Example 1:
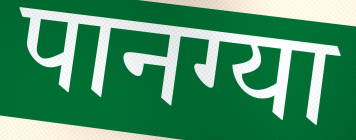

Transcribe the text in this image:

पानग्या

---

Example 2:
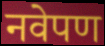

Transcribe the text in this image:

नवेपण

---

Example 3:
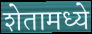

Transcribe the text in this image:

शेतामध्ये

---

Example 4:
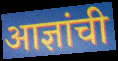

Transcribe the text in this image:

आज्ञांची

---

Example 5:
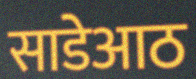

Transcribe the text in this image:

साडेआठ